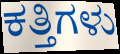
ಕತ್ತಿಗಳು